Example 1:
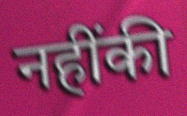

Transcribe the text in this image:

नहींकी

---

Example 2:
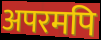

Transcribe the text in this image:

अपरमपि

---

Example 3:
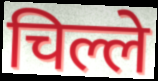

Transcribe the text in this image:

चिल्ले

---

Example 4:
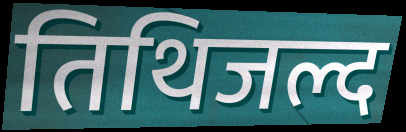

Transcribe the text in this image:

तिथिजल्द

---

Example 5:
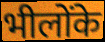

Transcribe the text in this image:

भीलोंके